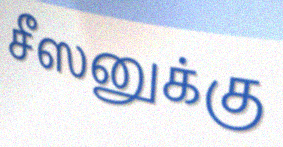
சீஸனுக்கு